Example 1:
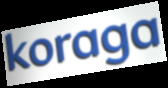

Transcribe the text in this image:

koraga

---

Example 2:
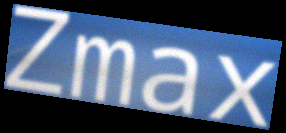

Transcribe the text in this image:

Zmax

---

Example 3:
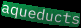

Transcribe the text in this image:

aqueducts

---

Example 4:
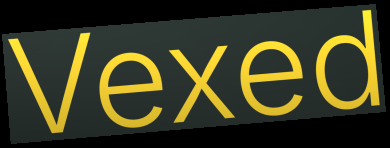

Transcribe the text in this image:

Vexed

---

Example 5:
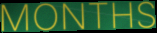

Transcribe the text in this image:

MONTHS